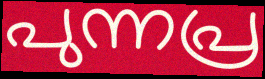
പുന്നപ്ര